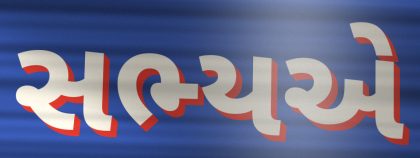
સભ્યએ